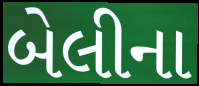
બેલીના